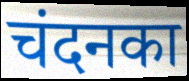
चंदनका